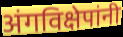
अंगविक्षेपांनी